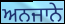
ਅਨਜਾਨੇ